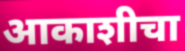
आकाशीचा